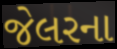
જેલરના